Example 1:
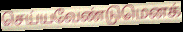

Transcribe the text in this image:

செய்யவேண்டுமெனக்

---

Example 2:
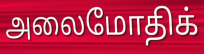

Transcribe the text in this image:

அலைமோதிக்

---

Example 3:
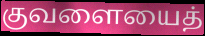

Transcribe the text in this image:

குவளையைத்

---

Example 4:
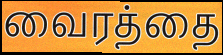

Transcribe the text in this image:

வைரத்தை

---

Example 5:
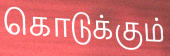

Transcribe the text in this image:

கொடுக்கும்